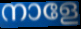
നാളേ